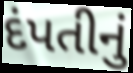
દંપતીનું